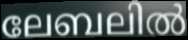
ലേബലിൽ